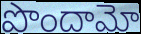
పొందామో